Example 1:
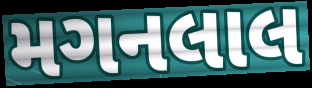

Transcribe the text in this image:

મગનલાલ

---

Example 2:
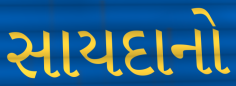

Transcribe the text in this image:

સાયદાનો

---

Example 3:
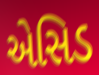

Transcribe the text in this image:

એસિડ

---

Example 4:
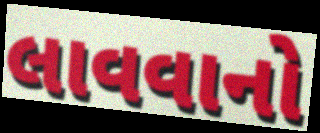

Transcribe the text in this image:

લાવવાનો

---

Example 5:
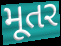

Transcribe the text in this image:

મૂતર